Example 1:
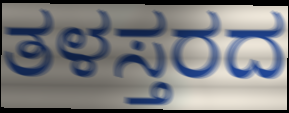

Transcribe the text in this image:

ತಳಸ್ತರದ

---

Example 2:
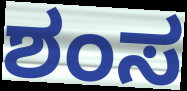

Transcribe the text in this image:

ಶಂಸ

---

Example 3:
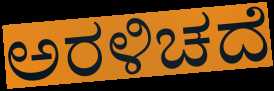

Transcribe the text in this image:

ಅರಳಿಚದೆ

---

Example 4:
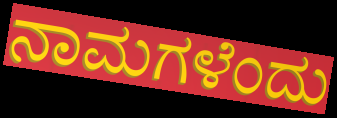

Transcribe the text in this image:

ನಾಮಗಳೆಂದು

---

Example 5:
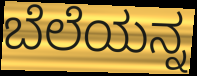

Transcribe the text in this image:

ಬೆಲೆಯನ್ನ